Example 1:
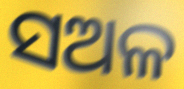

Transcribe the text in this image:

ସଅଳ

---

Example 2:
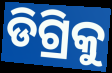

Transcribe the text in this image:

ଡିଗ୍ରିକୁ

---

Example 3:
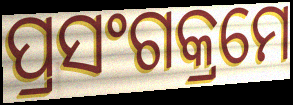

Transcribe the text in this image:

ପ୍ରସଂଗକ୍ରମେ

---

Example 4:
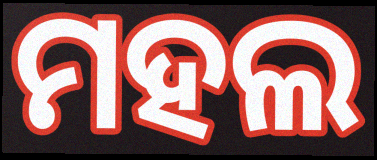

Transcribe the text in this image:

ମହଲ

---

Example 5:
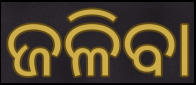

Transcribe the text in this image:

ଜଳିବା